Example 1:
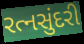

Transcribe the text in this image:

રત્નસુંદરી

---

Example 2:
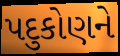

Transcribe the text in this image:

પદુકોણને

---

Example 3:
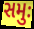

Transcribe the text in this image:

સમુઃ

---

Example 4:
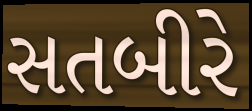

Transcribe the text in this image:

સતબીરે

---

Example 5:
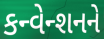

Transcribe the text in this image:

કન્વેન્શનને